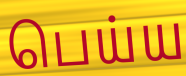
பெய்ய